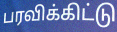
பரவிக்கிட்டு